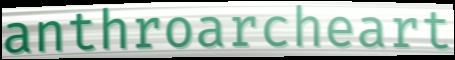
anthroarcheart